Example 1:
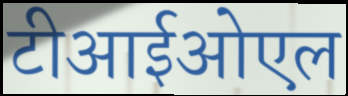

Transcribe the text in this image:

टीआईओएल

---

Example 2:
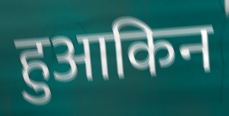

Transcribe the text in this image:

हुआकिन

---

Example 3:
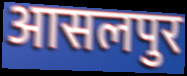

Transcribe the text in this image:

आसलपुर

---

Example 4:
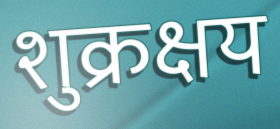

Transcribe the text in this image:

शुक्रक्षय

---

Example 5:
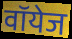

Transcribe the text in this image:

वॉयेज